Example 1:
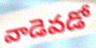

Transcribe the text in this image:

వాడెవడో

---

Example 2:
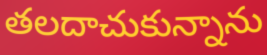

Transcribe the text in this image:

తలదాచుకున్నాను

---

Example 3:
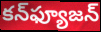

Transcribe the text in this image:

కన్‌ఫ్యూజన్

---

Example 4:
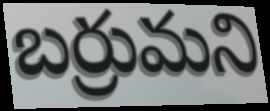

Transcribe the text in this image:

బర్రుమని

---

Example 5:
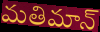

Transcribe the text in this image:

మతిమాన్